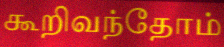
கூறிவந்தோம்